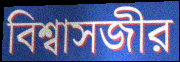
বিশ্বাসজীর